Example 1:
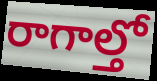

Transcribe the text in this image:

రాగాల్తో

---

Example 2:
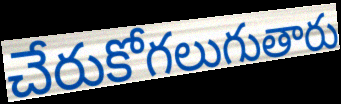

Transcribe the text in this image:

చేరుకోగలుగుతారు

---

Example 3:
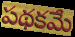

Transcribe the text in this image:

పథకమే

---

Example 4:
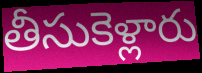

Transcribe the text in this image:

తీసుకెళ్లారు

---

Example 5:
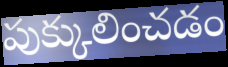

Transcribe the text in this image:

పుక్కులించడం